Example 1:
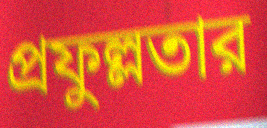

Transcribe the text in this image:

প্রফুল্লতার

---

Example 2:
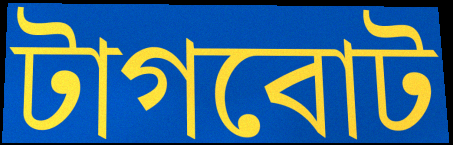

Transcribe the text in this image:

টাগবোট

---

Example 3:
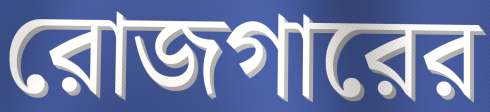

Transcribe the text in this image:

রোজগারের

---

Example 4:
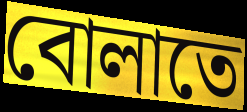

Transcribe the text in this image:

বোলাতে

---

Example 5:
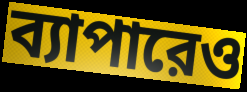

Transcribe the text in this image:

ব্যাপারেও